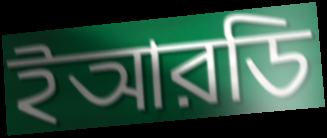
ইআরডি